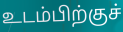
உடம்பிற்குச்